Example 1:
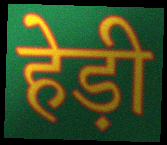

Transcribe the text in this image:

हेड़ी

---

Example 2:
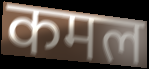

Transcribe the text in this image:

कमल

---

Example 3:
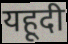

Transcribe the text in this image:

यहूदी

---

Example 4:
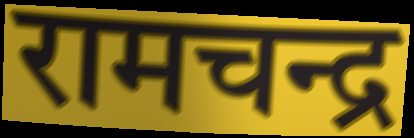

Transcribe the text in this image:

रामचन्द्र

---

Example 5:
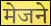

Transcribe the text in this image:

मेजने